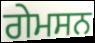
ਗੇਮਸਨ